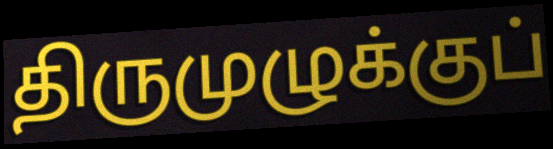
திருமுழுக்குப்